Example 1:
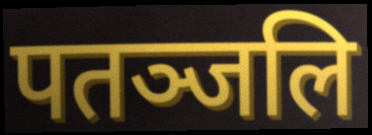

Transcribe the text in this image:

पतञ्जलि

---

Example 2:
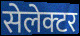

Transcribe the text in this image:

सेलेक्‍टर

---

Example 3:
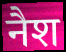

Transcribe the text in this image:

नैश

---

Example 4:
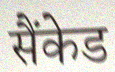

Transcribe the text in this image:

सैंकेड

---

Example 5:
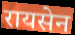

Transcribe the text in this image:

रायसेन